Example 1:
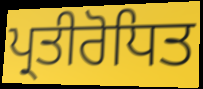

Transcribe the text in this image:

ਪ੍ਰਤੀਰੋਧਿਤ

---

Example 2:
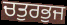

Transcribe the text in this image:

ਚਤੁਰਭੁਜ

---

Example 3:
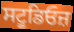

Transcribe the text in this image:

ਸਟੂਡਿਓਜ਼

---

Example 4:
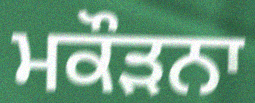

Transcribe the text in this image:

ਮਕੌੜਨਾ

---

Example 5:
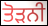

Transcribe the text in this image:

ਤੋੜਨੀ